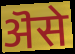
ऄसे